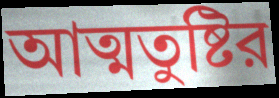
আত্মতুষ্টির